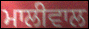
ਮਾਲੀਵਾਲ